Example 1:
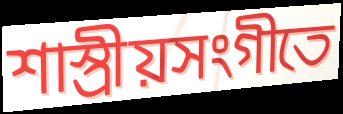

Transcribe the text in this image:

শাস্ত্রীয়সংগীতে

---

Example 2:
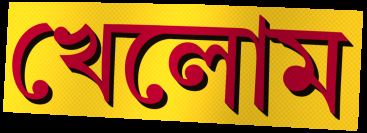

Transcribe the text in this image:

খেলোম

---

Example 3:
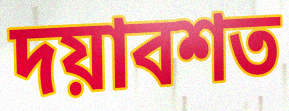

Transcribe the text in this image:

দয়াবশত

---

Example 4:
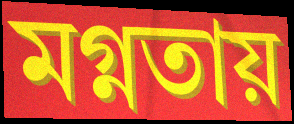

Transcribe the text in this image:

মগ্নতায়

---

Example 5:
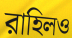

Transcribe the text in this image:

রাহিলও